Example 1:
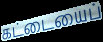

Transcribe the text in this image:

கட்டையைப்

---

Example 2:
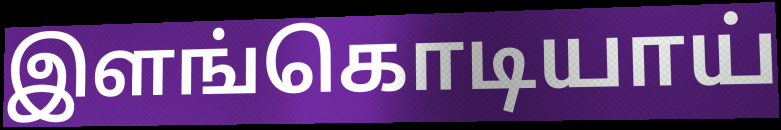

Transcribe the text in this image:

இளங்கொடியாய்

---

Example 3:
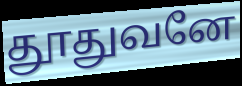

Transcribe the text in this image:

தூதுவனே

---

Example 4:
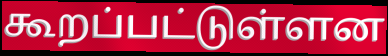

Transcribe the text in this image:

கூறப்பட்டுள்ளன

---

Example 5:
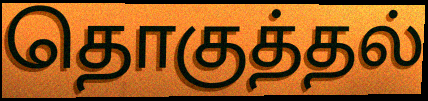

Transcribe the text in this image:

தொகுத்தல்